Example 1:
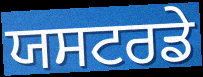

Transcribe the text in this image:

ਯਸਟਰਡੇ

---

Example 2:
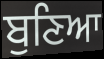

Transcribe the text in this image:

ਬੁਣਿਆ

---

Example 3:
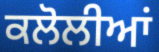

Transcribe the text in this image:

ਕਲੋਲੀਆਂ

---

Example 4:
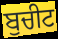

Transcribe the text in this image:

ਬੁਚੀਟ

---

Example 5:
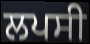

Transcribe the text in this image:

ਲਪਸੀ